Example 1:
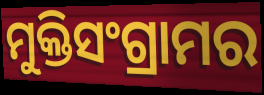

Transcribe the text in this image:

ମୁକ୍ତିସଂଗ୍ରାମର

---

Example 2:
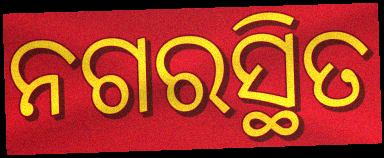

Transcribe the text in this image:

ନଗରସ୍ଥିତ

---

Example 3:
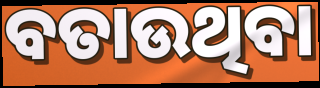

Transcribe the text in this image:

ବତାଉଥିବା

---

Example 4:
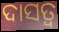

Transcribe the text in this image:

ଦାସତ୍ବ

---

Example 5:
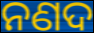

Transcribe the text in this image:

ନଣଦ